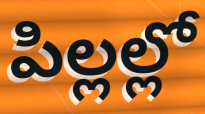
పిల్లల్లో